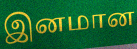
இனமான